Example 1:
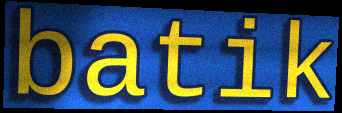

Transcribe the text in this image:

batik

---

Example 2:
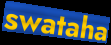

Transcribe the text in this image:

swataha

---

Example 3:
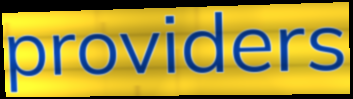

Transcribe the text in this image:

providers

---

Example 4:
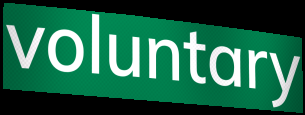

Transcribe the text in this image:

voluntary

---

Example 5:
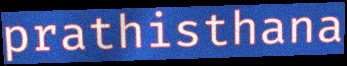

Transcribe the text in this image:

prathisthana